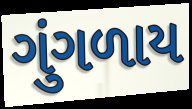
ગુંગળાય